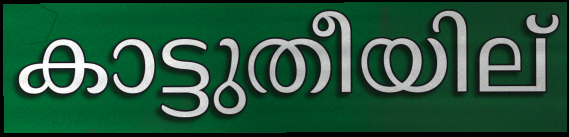
കാട്ടുതീയില്